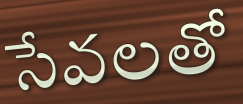
సేవలతో